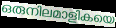
ഒരുനിലമാളികയെ